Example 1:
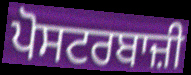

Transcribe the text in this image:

ਪੋਸਟਰਬਾਜ਼ੀ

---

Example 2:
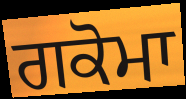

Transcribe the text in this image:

ਗਕੋਮਾ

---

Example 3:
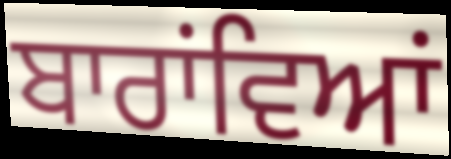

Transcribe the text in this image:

ਬਾਰਾਂਵਿਆਂ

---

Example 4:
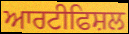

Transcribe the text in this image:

ਆਰਟੀਫਿਸ਼ਲ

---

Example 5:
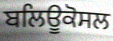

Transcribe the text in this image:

ਬਲਿਊਕੋਸਲ